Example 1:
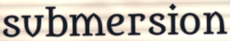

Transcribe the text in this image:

submersion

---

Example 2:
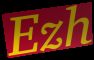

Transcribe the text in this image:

Ezh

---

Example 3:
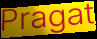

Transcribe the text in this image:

Pragat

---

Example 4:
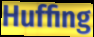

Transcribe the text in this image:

Huffing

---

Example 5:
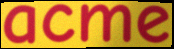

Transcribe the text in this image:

acme